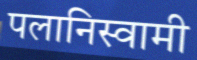
पलानिस्वामी